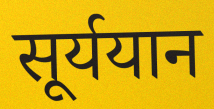
सूर्ययान